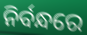
ନିର୍ବନ୍ଧରେ